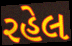
રહેલ